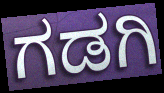
ಗಡಗಿ